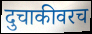
दुचाकीवरच